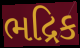
ભદ્રિક